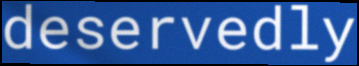
deservedly